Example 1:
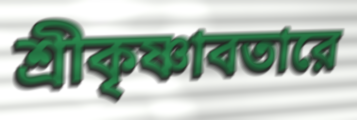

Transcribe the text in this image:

শ্রীকৃষ্ণাবতারে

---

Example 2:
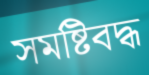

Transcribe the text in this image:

সমষ্টিবদ্ধ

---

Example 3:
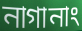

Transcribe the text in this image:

নাগানাং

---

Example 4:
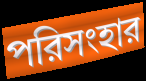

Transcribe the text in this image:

পরিসংহার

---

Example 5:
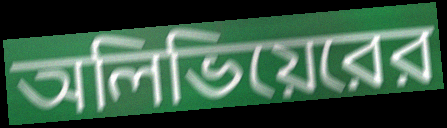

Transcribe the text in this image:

অলিভিয়েরের